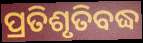
ପ୍ରତିଶୃତିବଦ୍ଧ